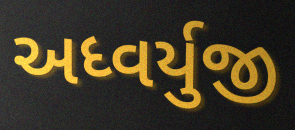
અધ્વર્યુજી